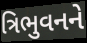
ત્રિભુવનને